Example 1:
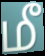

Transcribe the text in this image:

மீ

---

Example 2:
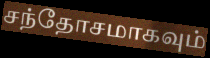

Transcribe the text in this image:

சந்தோசமாகவும்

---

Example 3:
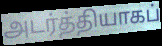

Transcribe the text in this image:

அடர்த்தியாகப்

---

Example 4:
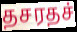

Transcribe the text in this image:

தசரதச்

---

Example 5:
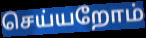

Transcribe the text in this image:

செய்யறோம்